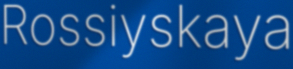
Rossiyskaya